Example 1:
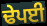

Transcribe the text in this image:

ਢੇਪਈ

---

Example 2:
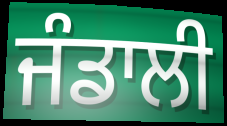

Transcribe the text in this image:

ਜੰਡਾਲੀ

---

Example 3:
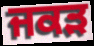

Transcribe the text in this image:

ਜਕੜ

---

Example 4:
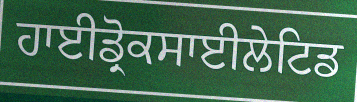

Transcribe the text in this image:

ਹਾਈਡ੍ਰੋਕਸਾਈਲੇਟਿਡ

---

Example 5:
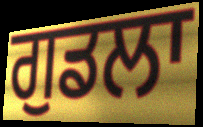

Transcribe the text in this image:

ਗੁਡਲਾ